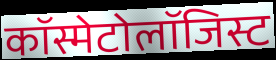
कॉस्मेटोलॉजिस्ट